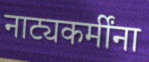
नाट्यकर्मींना